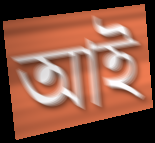
আই